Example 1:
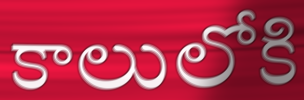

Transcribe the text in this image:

కాలులోకి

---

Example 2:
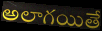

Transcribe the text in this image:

అలాగయితే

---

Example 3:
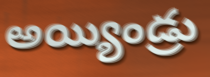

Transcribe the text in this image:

అయ్యిండ్రు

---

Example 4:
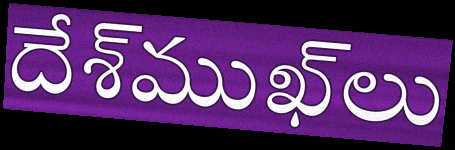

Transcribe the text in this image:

దేశ్‌ముఖ్‌లు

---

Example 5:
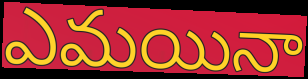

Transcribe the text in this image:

ఎమయినా